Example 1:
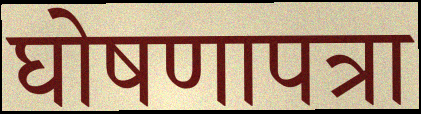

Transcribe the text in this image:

घोषणापत्रा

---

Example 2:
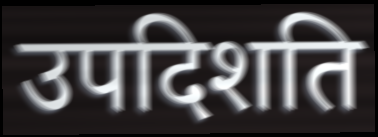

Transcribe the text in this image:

उपदिशति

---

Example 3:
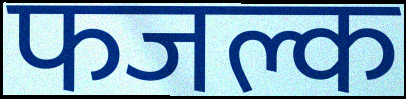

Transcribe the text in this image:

फजल्क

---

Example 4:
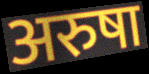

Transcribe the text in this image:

अरुषा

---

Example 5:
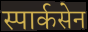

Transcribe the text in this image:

स्पार्कसेन